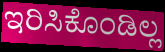
ಇರಿಸಿಕೊಂಡಿಲ್ಲ